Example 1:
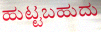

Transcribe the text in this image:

ಹುಟ್ಟಬಹುದು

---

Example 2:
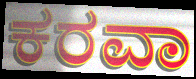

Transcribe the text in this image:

ಕರವಾ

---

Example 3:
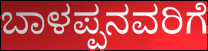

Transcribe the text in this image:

ಬಾಳಪ್ಪನವರಿಗೆ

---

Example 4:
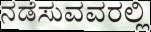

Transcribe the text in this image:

ನಡೆಸುವವರಲ್ಲಿ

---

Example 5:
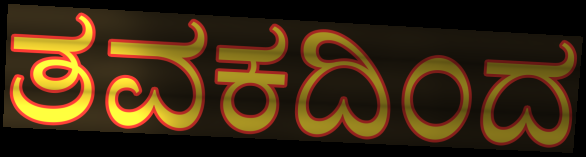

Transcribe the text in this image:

ತವಕದಿಂದ